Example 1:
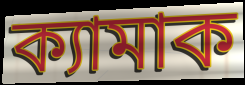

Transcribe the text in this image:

ক্যামাক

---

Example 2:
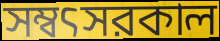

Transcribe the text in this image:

সম্বৎসরকাল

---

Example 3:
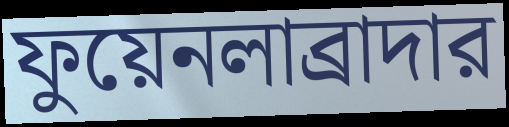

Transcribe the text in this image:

ফুয়েনলাব্রাদার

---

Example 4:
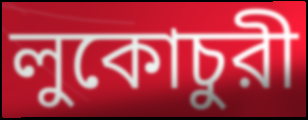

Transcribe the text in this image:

লুকোচুরী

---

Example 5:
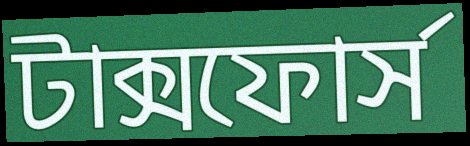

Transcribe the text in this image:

টাক্সফোর্স